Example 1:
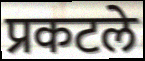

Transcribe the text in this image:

प्रकटले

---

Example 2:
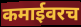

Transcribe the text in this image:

कमाईवरच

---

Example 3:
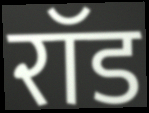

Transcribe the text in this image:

रॉड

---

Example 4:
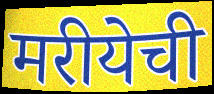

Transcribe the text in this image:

मरीयेची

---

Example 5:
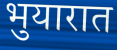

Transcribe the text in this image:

भुयारात